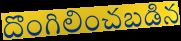
దొంగిలించబడిన